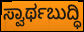
ಸ್ವಾರ್ಥಬುದ್ಧಿ